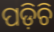
ପଡ଼ିଚି